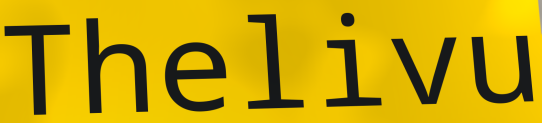
Thelivu